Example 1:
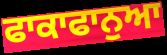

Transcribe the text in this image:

ਫਾਕਾਫਾਨੁਆ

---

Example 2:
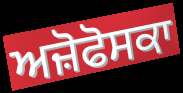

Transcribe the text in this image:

ਅਜ਼ੋਫੋਸਕਾ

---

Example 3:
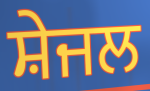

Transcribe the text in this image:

ਸ਼ੇਜਲ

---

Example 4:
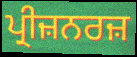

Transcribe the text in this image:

ਪ੍ਰੀਜ਼ਨਰਜ਼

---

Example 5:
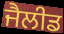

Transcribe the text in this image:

ਜੈਲੀਡ